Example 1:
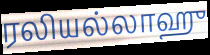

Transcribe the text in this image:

ரலியல்லாஹு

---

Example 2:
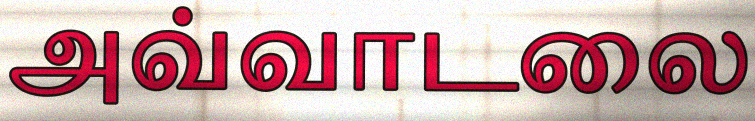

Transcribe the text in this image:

அவ்வாடலை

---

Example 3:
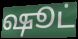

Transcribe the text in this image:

ஷூட்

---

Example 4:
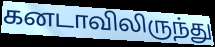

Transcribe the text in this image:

கனடாவிலிருந்து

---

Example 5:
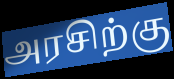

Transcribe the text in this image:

அரசிற்கு